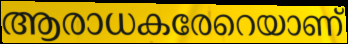
ആരാധകരേറെയാണ്